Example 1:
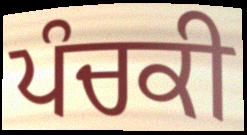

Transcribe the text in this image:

ਪੰਚਕੀ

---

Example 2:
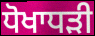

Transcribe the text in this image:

ਧੋਖਾਧਡ਼ੀ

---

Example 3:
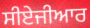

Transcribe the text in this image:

ਸੀਏਜੀਆਰ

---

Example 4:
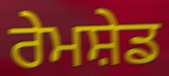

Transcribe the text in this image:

ਰੇਮਸ਼ੇਡ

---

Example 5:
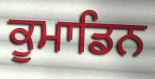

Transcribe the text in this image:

ਕੂਮਾਡਿਨ